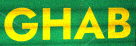
GHAB